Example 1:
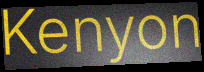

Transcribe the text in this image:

Kenyon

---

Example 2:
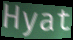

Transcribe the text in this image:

Hyat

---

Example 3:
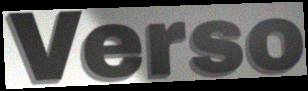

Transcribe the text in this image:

Verso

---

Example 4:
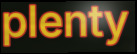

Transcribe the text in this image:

plenty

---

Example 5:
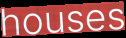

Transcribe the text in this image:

houses